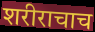
शरीराचाच